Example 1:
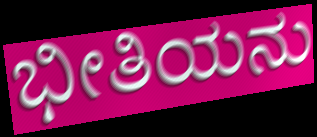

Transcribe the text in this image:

ಭೀತಿಯನು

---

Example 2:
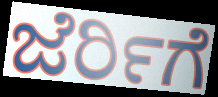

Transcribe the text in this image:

ಜೆರ್ರಿಗೆ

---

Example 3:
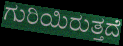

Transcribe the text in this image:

ಗುರಿಯಿರುತ್ತದೆ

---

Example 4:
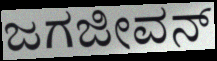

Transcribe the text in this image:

ಜಗಜೀವನ್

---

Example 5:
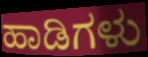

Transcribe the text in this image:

ಹಾಡಿಗಳು